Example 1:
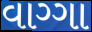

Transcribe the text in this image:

વાગ્ગા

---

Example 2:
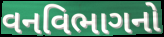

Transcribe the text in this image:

વનવિભાગનો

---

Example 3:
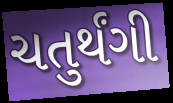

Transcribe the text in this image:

ચતુર્થંગી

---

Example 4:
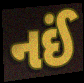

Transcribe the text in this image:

નઈં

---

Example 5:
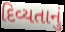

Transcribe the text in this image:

દિવ્યતાનું